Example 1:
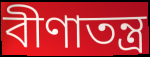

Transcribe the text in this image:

বীণাতন্ত্র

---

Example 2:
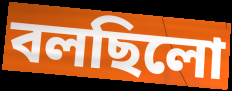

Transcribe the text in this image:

বলছিলো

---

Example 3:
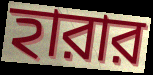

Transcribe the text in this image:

হারার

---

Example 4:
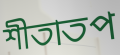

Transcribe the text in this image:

শীতাতপ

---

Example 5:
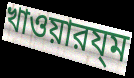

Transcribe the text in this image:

খাওয়ারয্ম